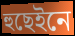
হুছেইনে